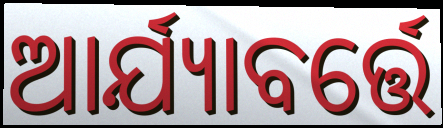
ଆର୍ଯ୍ୟାବର୍ତ୍ତେ